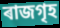
ৰাজগৃহ